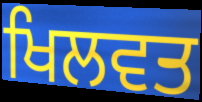
ਖਿਲਵਤ